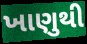
ખાણુથી